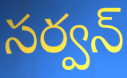
సర్వన్